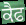
ਕੈਫ